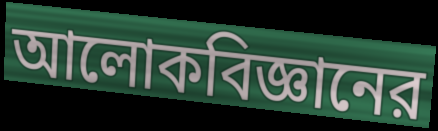
আলোকবিজ্ঞানের